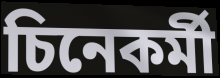
চিনেকৰ্মী